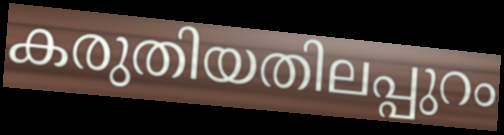
കരുതിയതിലപ്പുറം